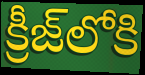
క్రీజ్‌లోకి